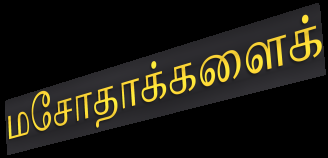
மசோதாக்களைக்